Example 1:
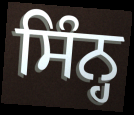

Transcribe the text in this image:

ਸਿੰਨ੍ਹ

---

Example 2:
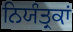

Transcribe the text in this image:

ਨਿਯੰਤ੍ਰਕਾਂ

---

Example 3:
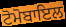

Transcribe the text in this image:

ਟੋਮੋਬਾਇਲ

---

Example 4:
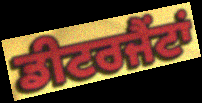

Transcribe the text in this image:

ਡੀਟਰਜੈਂਟਾਂ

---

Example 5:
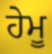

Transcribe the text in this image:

ਹੇਮੂ